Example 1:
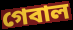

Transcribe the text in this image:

গেবাল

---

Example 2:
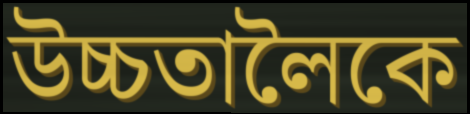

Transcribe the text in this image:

উচ্চতালৈকে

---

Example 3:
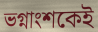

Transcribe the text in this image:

ভগ্নাংশকেই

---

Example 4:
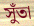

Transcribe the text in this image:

সুঁতা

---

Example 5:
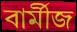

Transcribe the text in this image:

বাৰ্মীজ